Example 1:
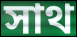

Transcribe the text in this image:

সাথ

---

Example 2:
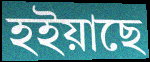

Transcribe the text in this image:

হইয়াছে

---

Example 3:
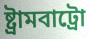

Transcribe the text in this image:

ষ্ট্ৰামবাট্ৰো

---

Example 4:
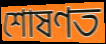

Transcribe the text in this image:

শোষণত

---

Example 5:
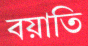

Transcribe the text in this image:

বয়াতি